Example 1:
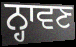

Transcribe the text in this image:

ਨ੍ਹਾਵਣ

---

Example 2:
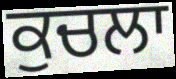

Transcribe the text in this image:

ਕੁਚਲਾ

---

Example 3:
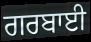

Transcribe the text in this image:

ਗਰਬਾਈ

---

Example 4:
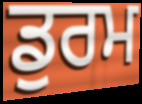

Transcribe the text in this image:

ਡੁਰਮ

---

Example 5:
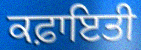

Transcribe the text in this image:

ਕਫ਼ਾਇਤੀ